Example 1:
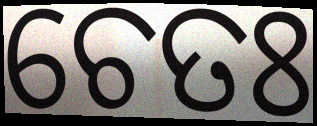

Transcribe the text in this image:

ଚେତଃ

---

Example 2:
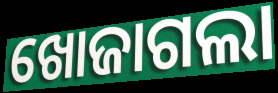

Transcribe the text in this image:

ଖୋଜାଗଲା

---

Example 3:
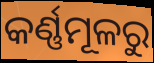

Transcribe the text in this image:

କର୍ଣ୍ଣମୂଳରୁ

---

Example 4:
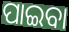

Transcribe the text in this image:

ପାଇବା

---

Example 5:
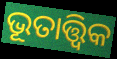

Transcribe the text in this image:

ଭୂତାତ୍ତ୍ୱିକ